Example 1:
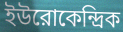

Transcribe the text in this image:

ইউরোকেন্দ্রিক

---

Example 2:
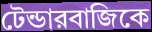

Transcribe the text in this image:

টেন্ডারবাজিকে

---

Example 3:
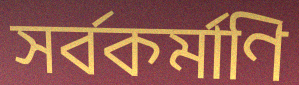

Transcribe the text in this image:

সর্বকর্মাণি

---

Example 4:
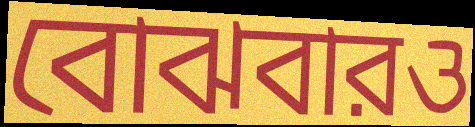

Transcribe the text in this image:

বোঝবারও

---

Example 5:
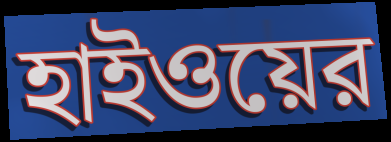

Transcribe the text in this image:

হাইওয়ের